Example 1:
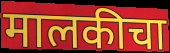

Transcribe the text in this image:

मालकीचा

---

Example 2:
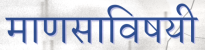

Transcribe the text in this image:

माणसाविषयी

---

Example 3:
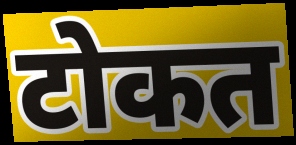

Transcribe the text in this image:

टोकत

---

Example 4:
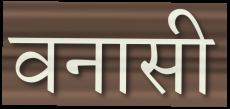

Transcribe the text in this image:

वनासी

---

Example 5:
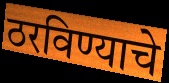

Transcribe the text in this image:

ठरविण्याचे